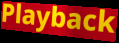
Playback